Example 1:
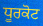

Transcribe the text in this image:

ਧੂਰਕੋਟ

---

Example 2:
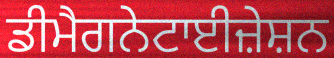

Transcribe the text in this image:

ਡੀਮੈਗਨੇਟਾਈਜ਼ੇਸ਼ਨ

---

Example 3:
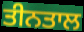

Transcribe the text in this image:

ਤੀਨਤਾਲ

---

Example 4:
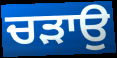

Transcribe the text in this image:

ਚੜਾਉ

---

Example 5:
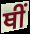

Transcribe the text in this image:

ਥੀਂ